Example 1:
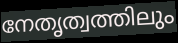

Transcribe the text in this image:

നേതൃത്വത്തിലും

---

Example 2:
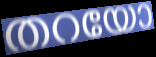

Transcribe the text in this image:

തറയോ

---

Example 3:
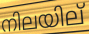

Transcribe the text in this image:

നിലയില്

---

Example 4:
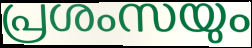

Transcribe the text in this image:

പ്രശംസയും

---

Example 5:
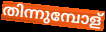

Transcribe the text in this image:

തിന്നുമ്പോള്